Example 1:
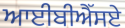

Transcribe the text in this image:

ਆਈਬੀਐੱਸਏ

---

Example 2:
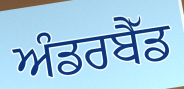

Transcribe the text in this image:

ਅੰਡਰਬੈੱਡ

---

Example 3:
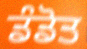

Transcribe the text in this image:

ਡੰਡੋਤ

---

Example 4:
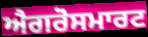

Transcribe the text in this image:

ਐਗਰੋਸਮਾਰਟ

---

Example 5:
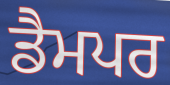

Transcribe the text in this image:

ਡੈਮਪਰ